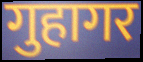
गुहागर